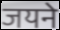
जयने